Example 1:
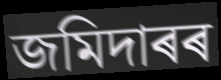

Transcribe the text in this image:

জমিদাৰৰ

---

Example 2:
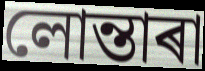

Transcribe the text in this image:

লোন্তাৰা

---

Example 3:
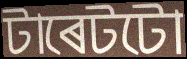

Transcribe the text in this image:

টাৰেটটো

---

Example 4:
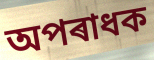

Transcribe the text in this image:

অপৰাধক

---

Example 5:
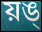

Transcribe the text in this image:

য়ঙ্